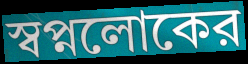
স্বপ্নলোকের